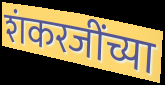
शंकरजींच्या